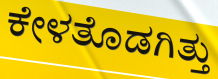
ಕೇಳತೊಡಗಿತ್ತು